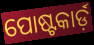
ପୋଷ୍ଟକାର୍ଡ଼